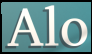
Alo